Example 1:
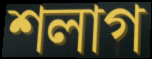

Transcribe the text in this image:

শলাগ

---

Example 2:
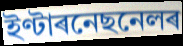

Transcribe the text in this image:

ইণ্টাৰনেছনেলৰ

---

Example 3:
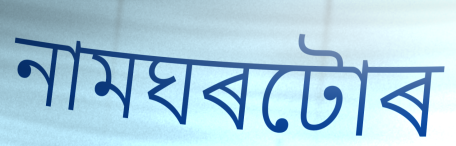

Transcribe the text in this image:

নামঘৰটোৰ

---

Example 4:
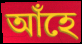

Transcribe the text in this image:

আঁহে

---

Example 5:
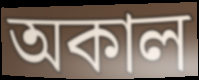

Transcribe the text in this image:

অকাল